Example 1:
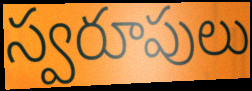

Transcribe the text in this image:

స్వరూపులు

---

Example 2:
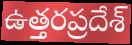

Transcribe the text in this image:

ఉత్తరప్రదేశ్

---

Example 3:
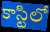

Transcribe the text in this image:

కాస్టిలో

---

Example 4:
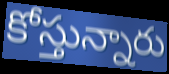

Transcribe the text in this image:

కోస్తున్నారు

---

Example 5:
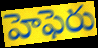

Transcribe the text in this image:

హెఫెరు